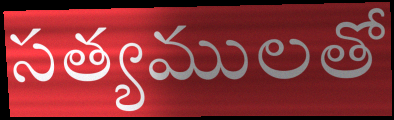
సత్యములతో